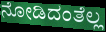
ನೋಡಿದಂತೆಲ್ಲ